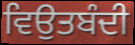
ਵਿਉਤਬੰਦੀ